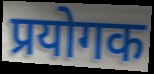
प्रयोगक